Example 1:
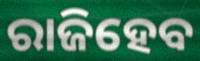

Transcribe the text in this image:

ରାଜିହେବ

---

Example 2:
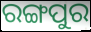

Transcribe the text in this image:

ରଙ୍ଗପୁର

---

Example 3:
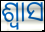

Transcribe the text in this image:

ଶ୍ୱାସ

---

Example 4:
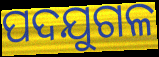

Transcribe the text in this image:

ପଦଯୁଗଳ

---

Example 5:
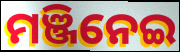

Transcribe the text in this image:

ମଞ୍ଜିନେଇ